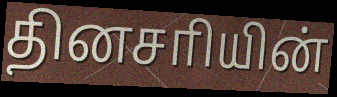
தினசரியின்